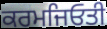
ਕਰਮਜਿਓਤੀ